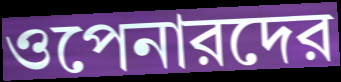
ওপেনারদের